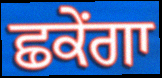
ਛਕੇਂਗਾ